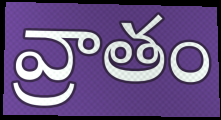
వ్రాతం